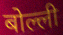
बोल्ली